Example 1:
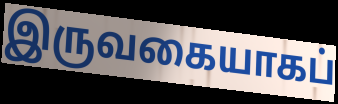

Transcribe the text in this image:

இருவகையாகப்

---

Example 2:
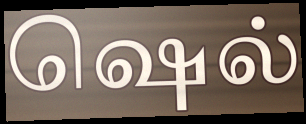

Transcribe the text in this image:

ஷெல்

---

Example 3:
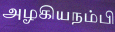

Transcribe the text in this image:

அழகியநம்பி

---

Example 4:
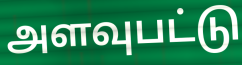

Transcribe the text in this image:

அளவுபட்டு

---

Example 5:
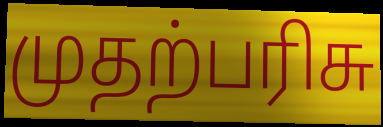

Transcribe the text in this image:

முதற்பரிசு